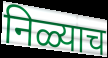
निळ्याच